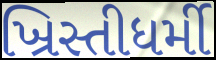
ખ્રિસ્તીધર્મી